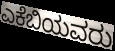
ಎಕೆಬಿಯವರು